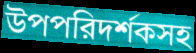
উপপরিদর্শকসহ